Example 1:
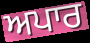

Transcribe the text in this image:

ਅਪਾਰ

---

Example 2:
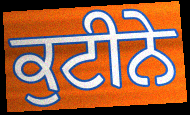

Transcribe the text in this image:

ਕੁਟੀਨੇ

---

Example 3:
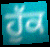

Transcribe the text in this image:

ਹੁੱਕ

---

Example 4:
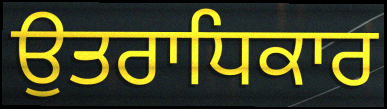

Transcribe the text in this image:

ਉਤਰਾਧਿਕਾਰ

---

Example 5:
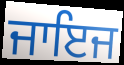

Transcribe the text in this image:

ਜਾਇਜ